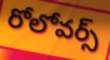
రోలోవర్స్